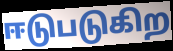
ஈடுபடுகிற